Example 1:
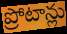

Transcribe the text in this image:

ప్రోటాన్లు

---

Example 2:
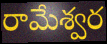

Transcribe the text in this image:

రామేశ్వర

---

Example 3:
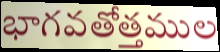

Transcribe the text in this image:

భాగవతోత్తముల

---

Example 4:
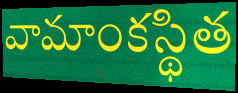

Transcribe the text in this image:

వామాంకస్థిత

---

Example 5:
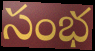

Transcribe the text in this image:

సంభ